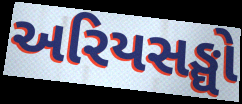
અરિયસઙ્ઘો